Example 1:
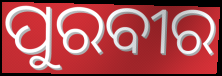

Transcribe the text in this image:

ପୁରବୀର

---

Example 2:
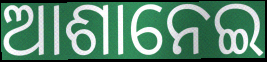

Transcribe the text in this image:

ଆଶାନେଇ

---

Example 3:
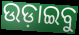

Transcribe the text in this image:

ଉଡ଼ାଇବୁ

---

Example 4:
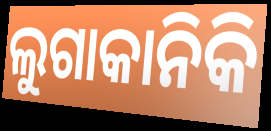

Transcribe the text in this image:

ଲୁଗାକାନିକି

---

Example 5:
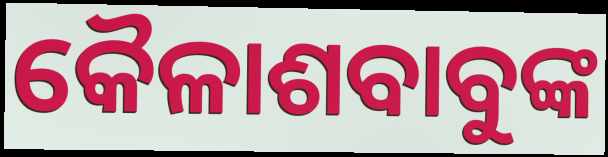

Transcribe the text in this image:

କୈଳାଶବାବୁଙ୍କ